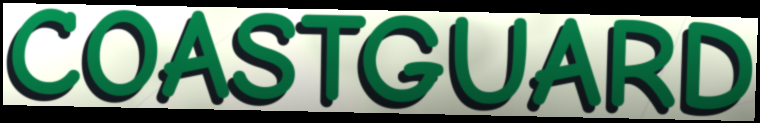
COASTGUARD